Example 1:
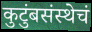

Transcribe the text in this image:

कुटुंबसंस्थेचं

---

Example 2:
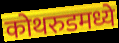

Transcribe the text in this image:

कोथरुडमध्ये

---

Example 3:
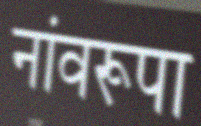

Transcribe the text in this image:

नांवरूपा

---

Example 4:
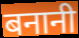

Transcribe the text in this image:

बनानी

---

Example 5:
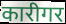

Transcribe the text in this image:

कारीगर